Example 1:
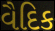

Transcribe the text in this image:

વૈદિક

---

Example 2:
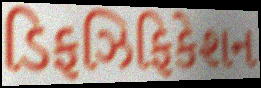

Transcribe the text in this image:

ડિફઝિફિકેશન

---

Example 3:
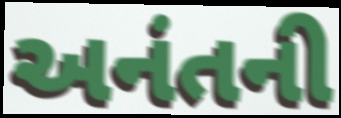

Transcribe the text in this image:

અનંતની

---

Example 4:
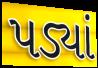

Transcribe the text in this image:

પડ્યાં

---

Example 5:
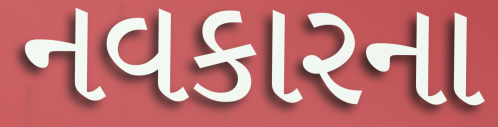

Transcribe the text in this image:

નવકારના